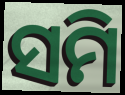
ସମି